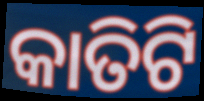
କାତିଟି